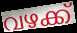
വഴക്ക്